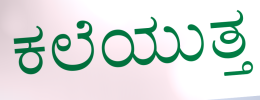
ಕಲೆಯುತ್ತ